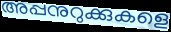
അപ്പനുറുക്കുകളെ